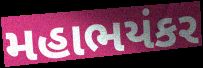
મહાભયંકર